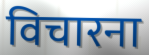
विचारना